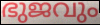
ഭുജവും